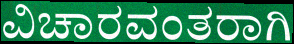
ವಿಚಾರವಂತರಾಗಿ